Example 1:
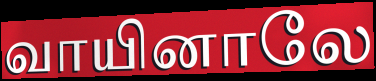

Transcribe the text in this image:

வாயினாலே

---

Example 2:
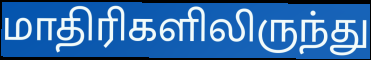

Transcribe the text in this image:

மாதிரிகளிலிருந்து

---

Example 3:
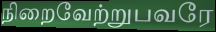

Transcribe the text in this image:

நிறைவேற்றுபவரே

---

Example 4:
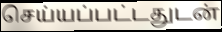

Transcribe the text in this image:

செய்யப்பட்டதுடன்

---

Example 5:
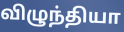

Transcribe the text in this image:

விழுந்தியா